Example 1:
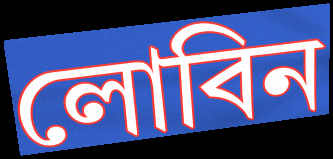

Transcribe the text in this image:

লোবিন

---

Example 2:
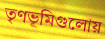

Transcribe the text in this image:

তৃণভূমিগুলোয়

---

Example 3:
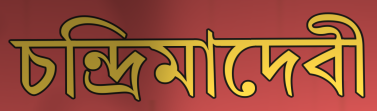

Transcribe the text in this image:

চন্দ্রিমাদেবী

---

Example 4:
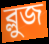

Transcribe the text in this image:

ব্লুজ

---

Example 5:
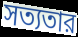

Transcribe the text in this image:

সত্যতার